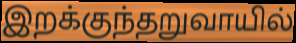
இறக்குந்தறுவாயில்